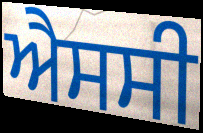
ਐਸਸੀ